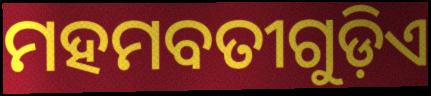
ମହମବତୀଗୁଡ଼ିଏ